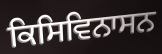
ਕਿਸਿਵਿਨਾਸਨ